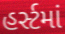
હર્સ્ટમાં